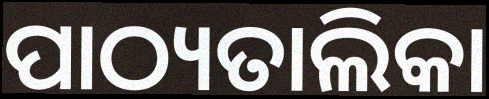
ପାଠ୍ୟତାଲିକା